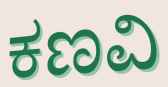
ಕಣವಿ